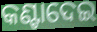
କଣ୍ଟାଦେଇ